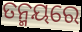
ତନ୍ମୟରେ